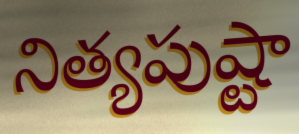
నిత్యపుష్టా